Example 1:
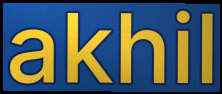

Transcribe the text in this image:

akhil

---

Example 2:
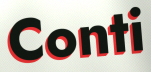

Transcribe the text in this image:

Conti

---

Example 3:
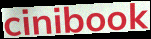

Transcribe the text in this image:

cinibook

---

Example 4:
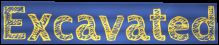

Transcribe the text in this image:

Excavated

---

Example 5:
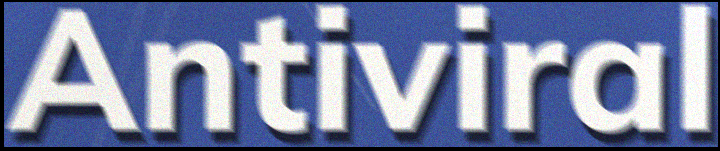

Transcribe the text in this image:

Antiviral